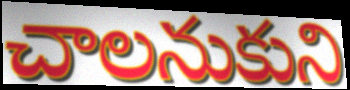
చాలనుకుని